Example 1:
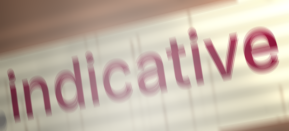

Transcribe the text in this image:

indicative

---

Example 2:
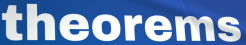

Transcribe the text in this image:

theorems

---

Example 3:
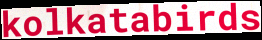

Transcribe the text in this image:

kolkatabirds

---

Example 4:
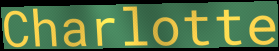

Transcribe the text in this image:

Charlotte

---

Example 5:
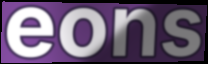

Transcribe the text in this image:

eons